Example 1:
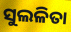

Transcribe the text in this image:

ସୁଲଳିତା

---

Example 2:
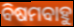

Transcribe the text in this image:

ବିଷମବାହୁ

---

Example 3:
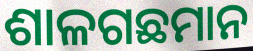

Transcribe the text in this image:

ଶାଳଗଛମାନ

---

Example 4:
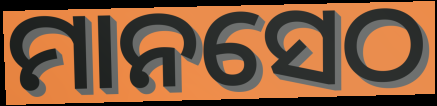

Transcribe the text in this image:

ମାନସେଠ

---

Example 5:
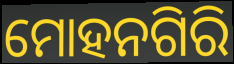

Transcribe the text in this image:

ମୋହନଗିରି